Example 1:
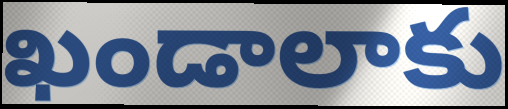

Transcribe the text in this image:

ఖండాలాకు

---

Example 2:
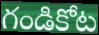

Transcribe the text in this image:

గండికోట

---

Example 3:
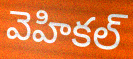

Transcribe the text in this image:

వెహికల్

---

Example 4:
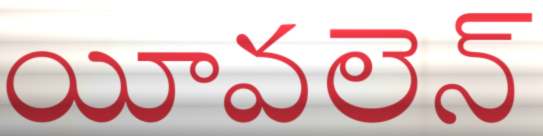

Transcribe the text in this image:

యీవలెన్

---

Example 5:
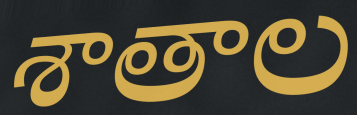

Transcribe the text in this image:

శాతాల